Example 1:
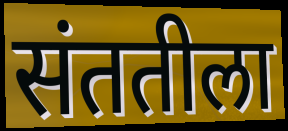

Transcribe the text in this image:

संततीला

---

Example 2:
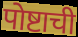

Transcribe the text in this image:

पोष्टाची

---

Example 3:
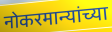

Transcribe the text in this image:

नोकरमान्यांच्या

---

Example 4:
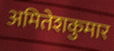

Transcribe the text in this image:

अमितेशकुमार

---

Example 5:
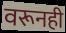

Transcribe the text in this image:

वरूनही